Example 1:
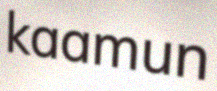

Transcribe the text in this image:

kaamun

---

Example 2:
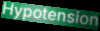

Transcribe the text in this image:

Hypotension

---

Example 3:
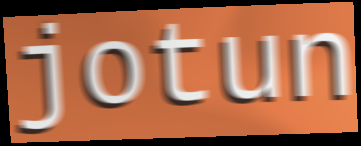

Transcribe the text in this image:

jotun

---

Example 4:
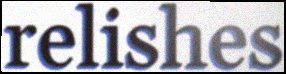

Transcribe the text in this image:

relishes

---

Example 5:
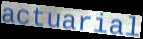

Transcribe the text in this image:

actuarial